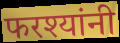
फरश्यांनी